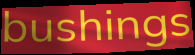
bushings